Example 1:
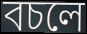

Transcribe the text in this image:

বচলে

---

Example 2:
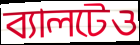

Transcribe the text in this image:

ব্যালটেও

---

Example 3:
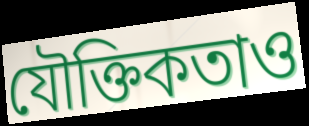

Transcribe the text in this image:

যৌক্তিকতাও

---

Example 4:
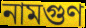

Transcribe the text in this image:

নামগুণ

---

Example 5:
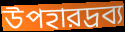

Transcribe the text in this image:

উপহারদ্রব্য